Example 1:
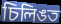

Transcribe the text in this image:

চিলিঙত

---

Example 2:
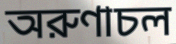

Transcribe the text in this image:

অৰুণাচল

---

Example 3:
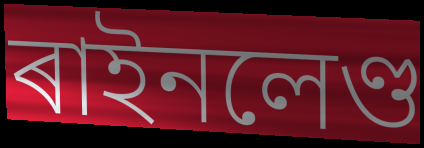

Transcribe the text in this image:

ৰাইনলেণ্ড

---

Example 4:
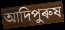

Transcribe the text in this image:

আদিপুৰুষ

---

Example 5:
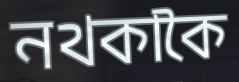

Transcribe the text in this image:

নথকাকৈ